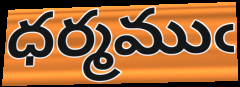
ధర్మముఁ